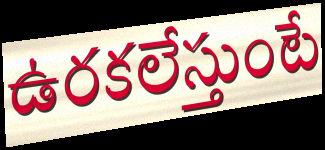
ఉరకలేస్తుంటే